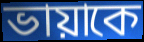
ভায়াকে